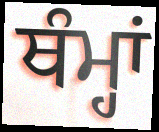
ਥੰਮ੍ਹਾਂ